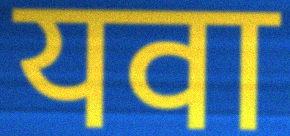
यवा